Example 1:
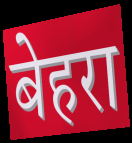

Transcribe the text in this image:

बेहरा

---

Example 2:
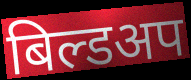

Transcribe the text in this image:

बिल्डअप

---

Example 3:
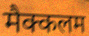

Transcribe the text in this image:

मैक्कलम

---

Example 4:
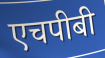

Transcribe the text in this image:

एचपीबी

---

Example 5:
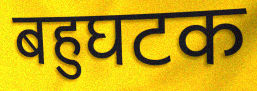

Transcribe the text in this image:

बहुघटक